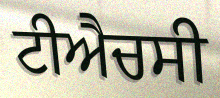
ਟੀਐਚਸੀ